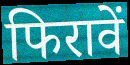
फिरावें